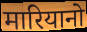
मारियानो